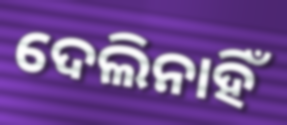
ଦେଲିନାହିଁ